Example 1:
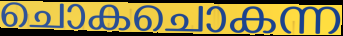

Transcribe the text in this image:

ചൊകചൊകന്ന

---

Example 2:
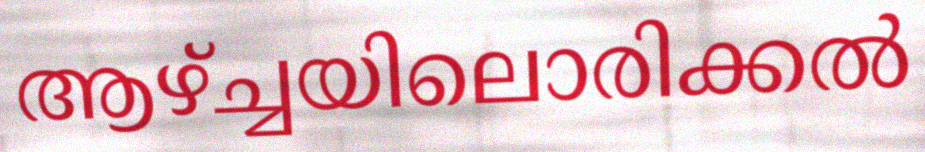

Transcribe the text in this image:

ആഴ്ച്ചയിലൊരിക്കൽ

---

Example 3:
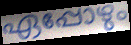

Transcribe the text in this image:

ഏപ്പോഴും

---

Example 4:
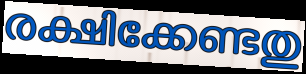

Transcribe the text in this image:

രക്ഷിക്കേണ്ടതു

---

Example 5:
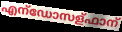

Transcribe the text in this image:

എന്ഡോസള്ഫാന്